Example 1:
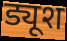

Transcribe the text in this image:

ड्यूश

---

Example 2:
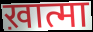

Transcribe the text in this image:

ख़ात्मा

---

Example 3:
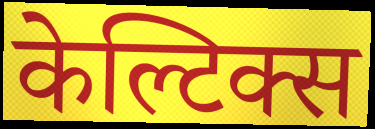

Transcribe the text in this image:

केल्टिक्स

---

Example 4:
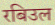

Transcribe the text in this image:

रबिउल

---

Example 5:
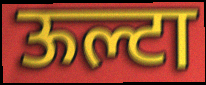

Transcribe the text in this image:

ऊल्टा